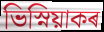
ভিস্নিয়াকৰ